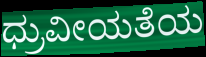
ಧ್ರುವೀಯತೆಯ